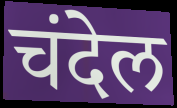
चंदेल